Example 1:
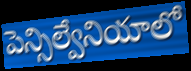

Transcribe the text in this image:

పెన్సిల్వేనియాలో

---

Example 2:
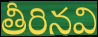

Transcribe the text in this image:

తీరినవి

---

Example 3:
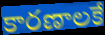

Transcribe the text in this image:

కారణాలకే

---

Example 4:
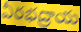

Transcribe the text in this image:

వీరభద్రాయ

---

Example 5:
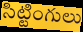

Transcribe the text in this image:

సిట్టింగులు